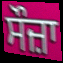
ਸੌਜ਼ਾ